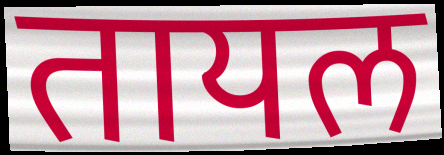
तायल